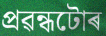
প্ৰৱন্ধটোৰ